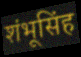
शंभूसिंह